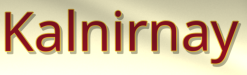
Kalnirnay